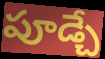
పూడ్చే